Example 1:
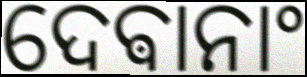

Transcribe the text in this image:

ଦେଵାନାଂ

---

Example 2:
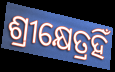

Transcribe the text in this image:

ଶ୍ରୀକ୍ଷେତ୍ରହିଁ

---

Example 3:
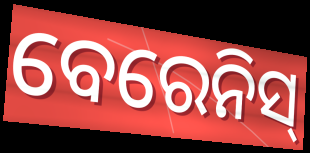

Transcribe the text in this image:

ବେରେନିସ୍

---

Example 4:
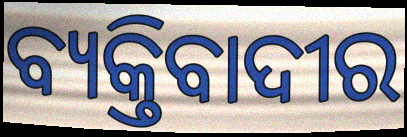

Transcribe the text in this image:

ବ୍ୟକ୍ତିବାଦୀର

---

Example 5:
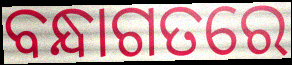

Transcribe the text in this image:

ବନ୍ଧାଗତରେ